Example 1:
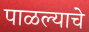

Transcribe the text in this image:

पाळल्याचे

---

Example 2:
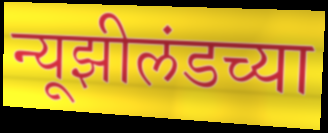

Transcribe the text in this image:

न्यूझीलंडच्या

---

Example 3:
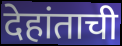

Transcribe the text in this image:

देहांताची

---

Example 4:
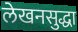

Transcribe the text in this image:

लेखनसुद्धा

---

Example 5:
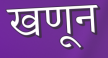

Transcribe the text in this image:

खणून